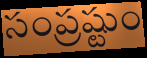
సంప్రష్టుం